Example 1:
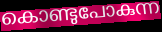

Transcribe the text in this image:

കൊണ്ടുപോകുന്ന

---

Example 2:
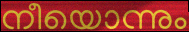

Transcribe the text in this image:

നീയൊന്നും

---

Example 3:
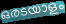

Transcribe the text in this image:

ഒരടയാളം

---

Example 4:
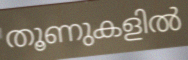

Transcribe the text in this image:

തൂണുകളിൽ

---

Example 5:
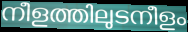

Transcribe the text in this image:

നീളത്തിലുടനീളം